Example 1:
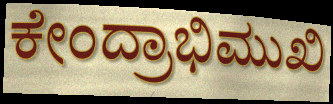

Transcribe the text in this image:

ಕೇಂದ್ರಾಭಿಮುಖಿ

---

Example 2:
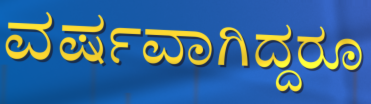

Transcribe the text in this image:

ವರ್ಷವಾಗಿದ್ದರೂ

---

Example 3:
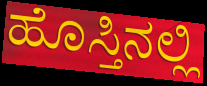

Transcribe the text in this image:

ಹೊಸ್ತಿನಲ್ಲಿ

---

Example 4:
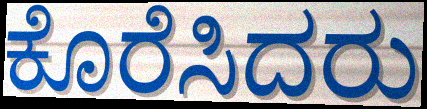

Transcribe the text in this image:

ಕೊರೆಸಿದರು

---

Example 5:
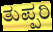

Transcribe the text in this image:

ತುಪ್ಪರಿ